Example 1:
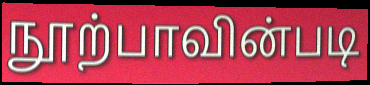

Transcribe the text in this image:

நூற்பாவின்படி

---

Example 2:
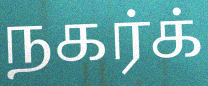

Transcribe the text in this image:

நகர்க்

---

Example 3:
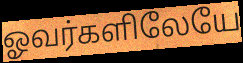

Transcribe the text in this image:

ஓவர்களிலேயே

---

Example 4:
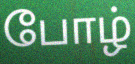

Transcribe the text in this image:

போழ்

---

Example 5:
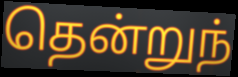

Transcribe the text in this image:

தென்றுந்